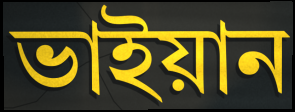
ভাইয়ান